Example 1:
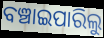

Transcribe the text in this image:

ବଞ୍ଚାଇପାରିଲୁ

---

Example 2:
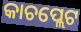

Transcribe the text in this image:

କାଚପ୍ଲେଟ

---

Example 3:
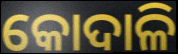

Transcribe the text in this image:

କୋଦାଳି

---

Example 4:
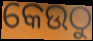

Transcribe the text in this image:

କେଉଠୁ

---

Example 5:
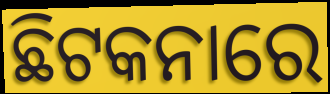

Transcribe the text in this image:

ଛିଟକନାରେ